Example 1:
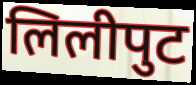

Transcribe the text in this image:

लिलीपुट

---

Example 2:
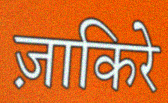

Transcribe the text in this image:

ज़ाकिरे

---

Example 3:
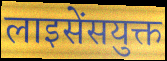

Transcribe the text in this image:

लाइसेंसयुक्त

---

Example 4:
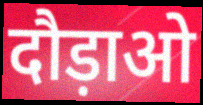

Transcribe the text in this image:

दौड़ाओ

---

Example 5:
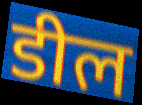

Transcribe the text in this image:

डील